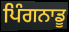
ਪਿੰਗਨਾਡੂ